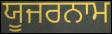
ਯੂਜਰਨਾਮ